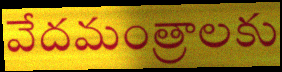
వేదమంత్రాలకు